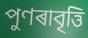
পুণৰাবৃত্তি